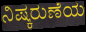
ನಿಷ್ಕರುಣೆಯ